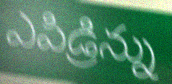
ఎపిడ్రిన్ను